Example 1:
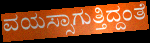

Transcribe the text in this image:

ವಯಸ್ಸಾಗುತ್ತಿದ್ದಂತೆ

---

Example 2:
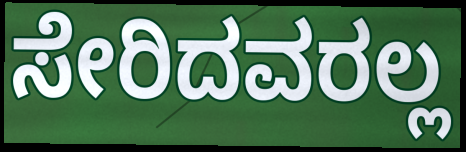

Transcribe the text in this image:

ಸೇರಿದವರಲ್ಲ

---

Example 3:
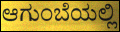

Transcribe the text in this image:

ಆಗುಂಬೆಯಲ್ಲಿ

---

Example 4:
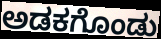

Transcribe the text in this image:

ಅಡಕಗೊಂಡು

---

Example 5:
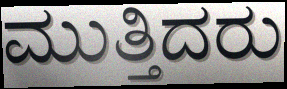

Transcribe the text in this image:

ಮುತ್ತಿದರು